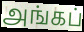
அங்கப்